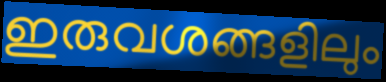
ഇരുവശങ്ങളിലും